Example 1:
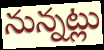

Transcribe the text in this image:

నున్నట్లు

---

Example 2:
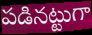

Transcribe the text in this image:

పడినట్టుగా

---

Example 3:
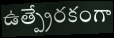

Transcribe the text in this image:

ఉత్ప్రేరకంగా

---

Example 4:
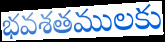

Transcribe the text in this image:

భవశతములకు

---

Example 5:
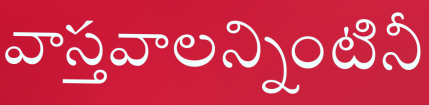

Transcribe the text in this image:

వాస్తవాలన్నింటినీ